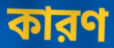
কারণ